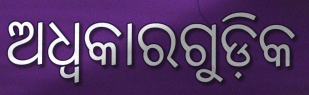
ଅଧ୍ବକାରଗୁଡ଼ିକ